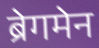
ब्रेगमेन